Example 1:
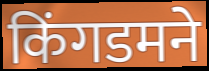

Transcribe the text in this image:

किंगडमने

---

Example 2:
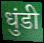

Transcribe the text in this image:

धुंडी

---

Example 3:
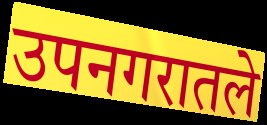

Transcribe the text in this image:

उपनगरातले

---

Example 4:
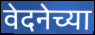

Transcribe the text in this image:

वेदनेच्या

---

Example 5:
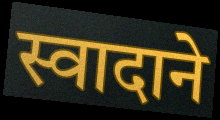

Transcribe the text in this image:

स्वादाने